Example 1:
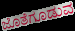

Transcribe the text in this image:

ಜೊತೆಗೂಡುವ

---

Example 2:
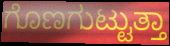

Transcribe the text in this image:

ಗೊಣಗುಟ್ಟುತ್ತಾ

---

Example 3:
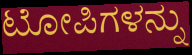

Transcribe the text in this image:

ಟೋಪಿಗಳನ್ನು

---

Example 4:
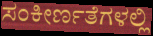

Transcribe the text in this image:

ಸಂಕೀರ್ಣತೆಗಳಲ್ಲಿ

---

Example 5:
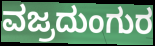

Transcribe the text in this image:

ವಜ್ರದುಂಗುರ